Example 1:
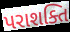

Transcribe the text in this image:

પરાશક્તિ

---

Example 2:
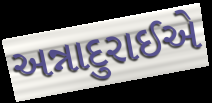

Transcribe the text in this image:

અન્નાદુરાઈએ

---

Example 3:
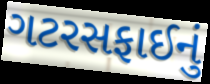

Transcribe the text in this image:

ગટરસફાઈનું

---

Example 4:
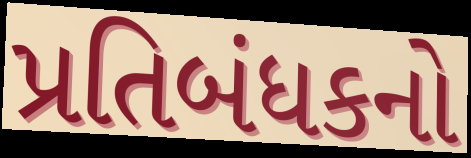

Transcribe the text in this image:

પ્રતિબંધકનો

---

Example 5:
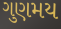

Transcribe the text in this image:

ગુણમય